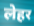
लेहर